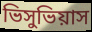
ভিসুভিয়াস